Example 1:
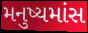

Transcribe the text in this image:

મનુષ્યમાંસ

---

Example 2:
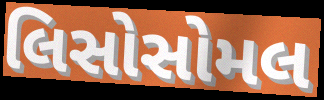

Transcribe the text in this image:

લિસોસોમલ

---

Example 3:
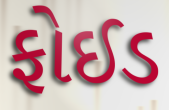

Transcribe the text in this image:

ફોઈડ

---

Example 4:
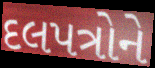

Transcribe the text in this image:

દલપત્રોને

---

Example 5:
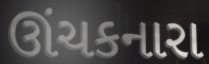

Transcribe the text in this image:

ઊંચકનારા